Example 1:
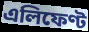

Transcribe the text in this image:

এলিফেণ্ট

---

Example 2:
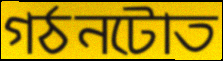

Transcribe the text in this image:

গঠনটোত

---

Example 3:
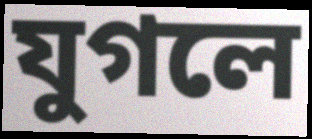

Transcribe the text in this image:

যুগলে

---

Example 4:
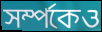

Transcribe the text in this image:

সৰ্ম্পকেও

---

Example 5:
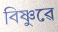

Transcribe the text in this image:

বিষ্ণুৱে